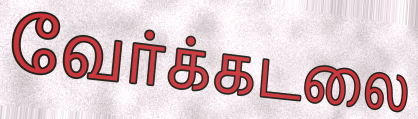
வேர்க்கடலை